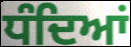
ਧੰਦਿਆਂ